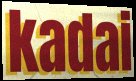
kadai